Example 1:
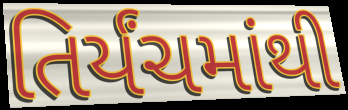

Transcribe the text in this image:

તિર્યંચમાંથી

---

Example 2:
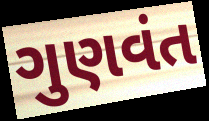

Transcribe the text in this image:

ગુણવંત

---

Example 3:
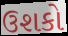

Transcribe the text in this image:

ઉશકો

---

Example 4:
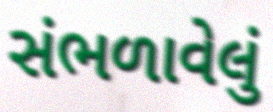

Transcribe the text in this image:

સંભળાવેલું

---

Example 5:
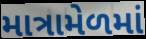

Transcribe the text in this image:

માત્રામેળમાં